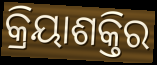
କ୍ରିୟାଶକ୍ତିର